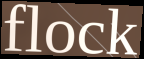
flock